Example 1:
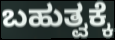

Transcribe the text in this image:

ಬಹುತ್ವಕ್ಕೆ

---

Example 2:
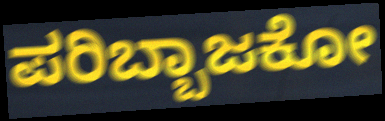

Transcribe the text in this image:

ಪರಿಬ್ಬಾಜಕೋ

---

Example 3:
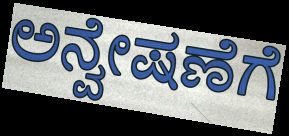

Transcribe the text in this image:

ಅನ್ವೇಷಣೆಗೆ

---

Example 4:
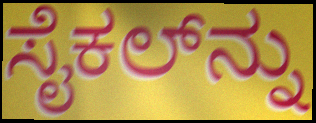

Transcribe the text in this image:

ಸೈಕಲ್‌ನ್ನು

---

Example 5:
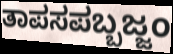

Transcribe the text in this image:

ತಾಪಸಪಬ್ಬಜ್ಜಂ